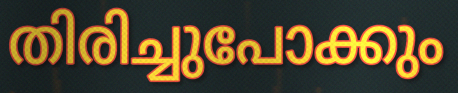
തിരിച്ചുപോക്കും